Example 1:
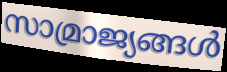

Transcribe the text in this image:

സാമ്രാജ്യങ്ങൾ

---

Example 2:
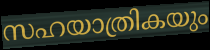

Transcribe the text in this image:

സഹയാത്രികയും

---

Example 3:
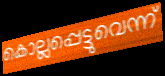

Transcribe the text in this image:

കൊല്ലപ്പെട്ടുവെന്ന്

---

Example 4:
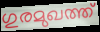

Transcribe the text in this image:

ഗുരമുഖത്ത്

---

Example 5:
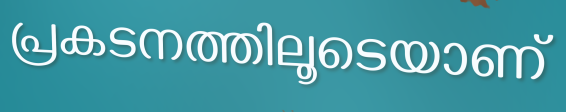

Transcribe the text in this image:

പ്രകടനത്തിലൂടെയാണ്